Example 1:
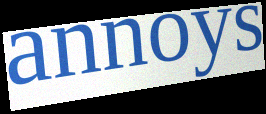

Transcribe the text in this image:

annoys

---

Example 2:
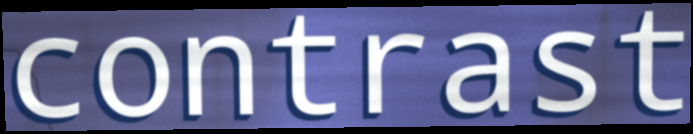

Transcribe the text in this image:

contrast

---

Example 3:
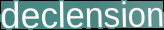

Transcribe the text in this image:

declension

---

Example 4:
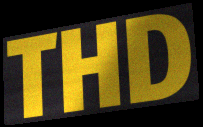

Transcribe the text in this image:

THD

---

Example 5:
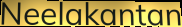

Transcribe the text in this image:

Neelakantan